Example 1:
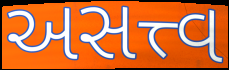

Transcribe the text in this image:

અસત્ત્વ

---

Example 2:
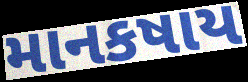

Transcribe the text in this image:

માનકષાય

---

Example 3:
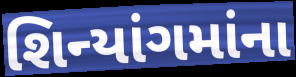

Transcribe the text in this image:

શિન્યાંગમાંના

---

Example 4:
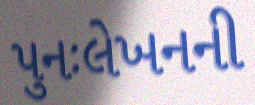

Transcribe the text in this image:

પુનઃલેખનની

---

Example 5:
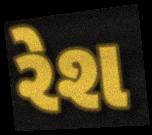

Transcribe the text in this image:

રેશ